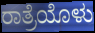
ರಾತ್ರೆಯೊಳು